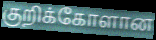
குறிக்கோளான